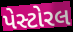
પેસ્ટોરલ